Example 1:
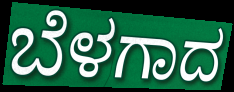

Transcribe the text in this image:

ಬೆಳಗಾದ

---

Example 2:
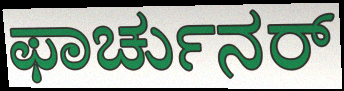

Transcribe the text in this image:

ಫಾರ್ಚುನರ್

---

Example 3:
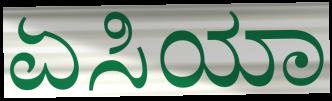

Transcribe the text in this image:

ಏಸಿಯಾ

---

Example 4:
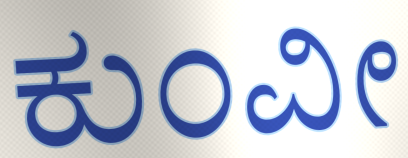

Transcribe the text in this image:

ಕುಂವೀ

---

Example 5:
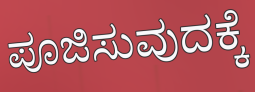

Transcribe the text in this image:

ಪೂಜಿಸುವುದಕ್ಕೆ